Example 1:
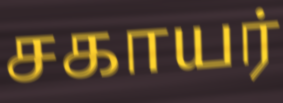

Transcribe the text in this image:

சகாயர்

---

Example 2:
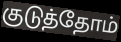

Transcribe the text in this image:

குடுத்தோம்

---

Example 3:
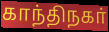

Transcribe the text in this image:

காந்திநகர்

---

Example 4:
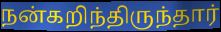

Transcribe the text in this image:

நன்கறிந்திருந்தார்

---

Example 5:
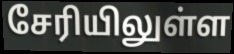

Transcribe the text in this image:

சேரியிலுள்ள